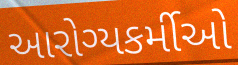
આરોગ્યકર્મીઓ